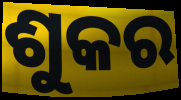
ଶୁକର